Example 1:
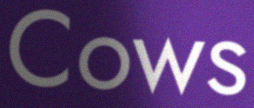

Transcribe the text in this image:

Cows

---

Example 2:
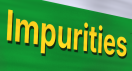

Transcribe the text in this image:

Impurities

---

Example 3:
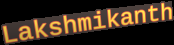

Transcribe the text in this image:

Lakshmikanth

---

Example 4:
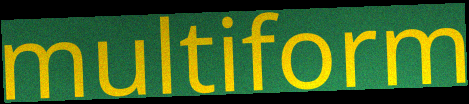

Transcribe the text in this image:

multiform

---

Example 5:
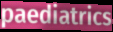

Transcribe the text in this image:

paediatrics